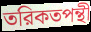
তরিকতপন্থী